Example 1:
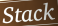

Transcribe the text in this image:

Stack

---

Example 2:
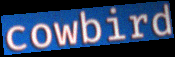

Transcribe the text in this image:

cowbird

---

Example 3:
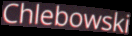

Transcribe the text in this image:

Chlebowski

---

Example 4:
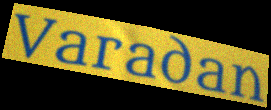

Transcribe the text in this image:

Varadan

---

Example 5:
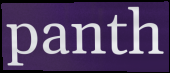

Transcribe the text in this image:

panth